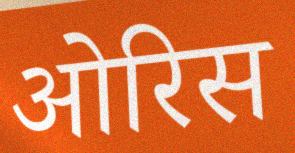
ओरिस